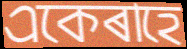
একেৰাহে